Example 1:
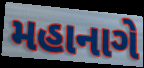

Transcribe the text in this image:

મહાનાગે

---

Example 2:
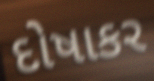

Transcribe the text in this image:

દોષાકર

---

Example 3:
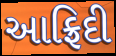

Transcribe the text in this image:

આફ્રિદી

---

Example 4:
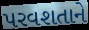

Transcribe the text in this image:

પરવશતાને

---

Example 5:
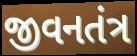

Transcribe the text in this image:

જીવનતંત્ર